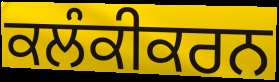
ਕਲੰਕੀਕਰਨ